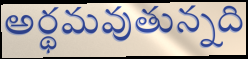
అర్థమవుతున్నది